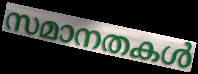
സമാനതകൾ